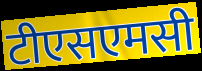
टीएसएमसी